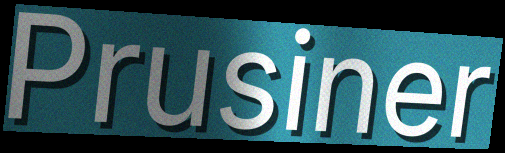
Prusiner